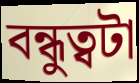
বন্ধুত্বটা